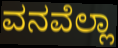
ವನವೆಲ್ಲಾ